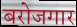
बरोजगार